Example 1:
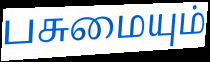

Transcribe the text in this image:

பசுமையும்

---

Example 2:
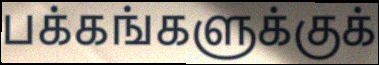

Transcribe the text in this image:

பக்கங்களுக்குக்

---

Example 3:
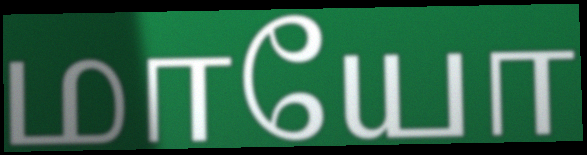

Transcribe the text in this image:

மாயோ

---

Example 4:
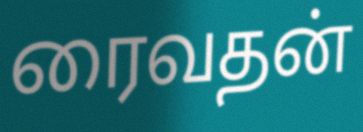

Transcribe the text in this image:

ரைவதன்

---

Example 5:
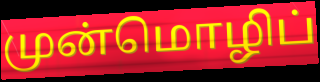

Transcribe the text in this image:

முன்மொழிப்